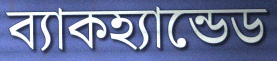
ব্যাকহ্যান্ডেড